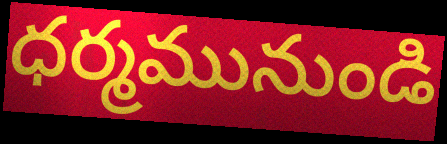
ధర్మమునుండి